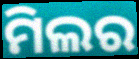
ମିଲର